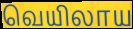
வெயிலாய